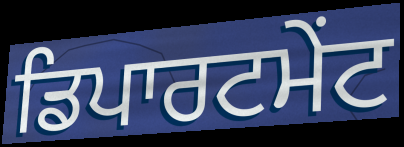
ਡਿਪਾਰਟਮੇਂਟ